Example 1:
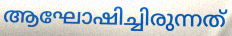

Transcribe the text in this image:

ആഘോഷിച്ചിരുന്നത്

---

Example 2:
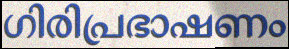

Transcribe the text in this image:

ഗിരിപ്രഭാഷണം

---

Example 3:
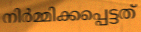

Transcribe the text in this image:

നിർമ്മിക്കപ്പെട്ടത്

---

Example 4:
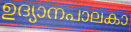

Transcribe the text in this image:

ഉദ്യാനപാലകാ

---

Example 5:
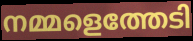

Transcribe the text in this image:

നമ്മളെത്തേടി